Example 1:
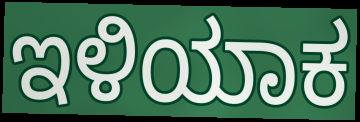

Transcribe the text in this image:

ಇಳಿಯಾಕ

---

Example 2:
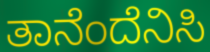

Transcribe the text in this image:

ತಾನೆಂದೆನಿಸಿ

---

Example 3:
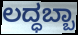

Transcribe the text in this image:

ಲದ್ಧಬ್ಬಾ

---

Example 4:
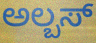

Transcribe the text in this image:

ಅಲ್ಬಸ್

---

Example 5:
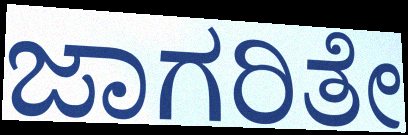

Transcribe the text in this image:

ಜಾಗರಿತೇ